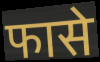
फासे